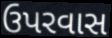
ઉપરવાસ